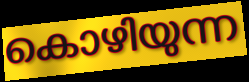
കൊഴിയുന്ന